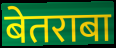
बेतराबा